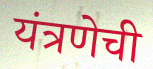
यंत्रणेची